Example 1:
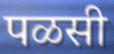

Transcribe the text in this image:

पळसी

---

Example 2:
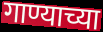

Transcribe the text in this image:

गाण्याच्या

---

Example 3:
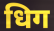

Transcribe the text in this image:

धिग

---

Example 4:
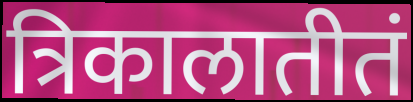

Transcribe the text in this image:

त्रिकालातीतं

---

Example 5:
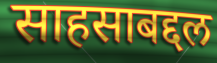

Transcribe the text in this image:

साहसाबद्दल